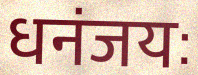
धनंजयः